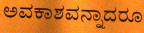
ಅವಕಾಶವನ್ನಾದರೂ